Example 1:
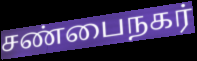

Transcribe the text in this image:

சண்பைநகர்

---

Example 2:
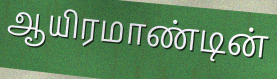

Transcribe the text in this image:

ஆயிரமாண்டின்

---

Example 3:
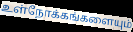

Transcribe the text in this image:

உள்நோக்கங்களையும்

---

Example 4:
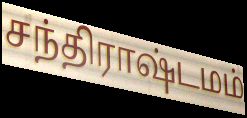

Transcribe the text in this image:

சந்திராஷ்டமம்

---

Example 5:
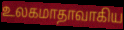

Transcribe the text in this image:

உலகமாதாவாகிய